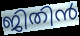
ജിതിൻ